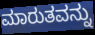
ಮಾರುತವನ್ನು